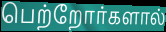
பெற்றோர்களால்